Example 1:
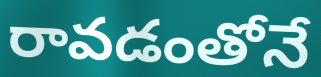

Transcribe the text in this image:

రావడంతోనే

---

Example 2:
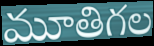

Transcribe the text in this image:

మూతిగల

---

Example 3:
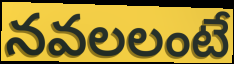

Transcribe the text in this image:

నవలలంటే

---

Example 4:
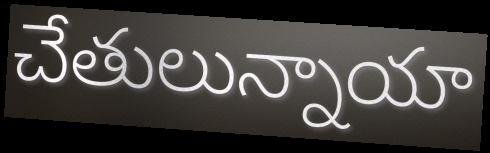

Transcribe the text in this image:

చేతులున్నాయా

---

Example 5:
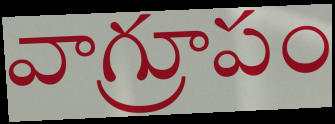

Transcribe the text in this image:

వాగ్రూపం